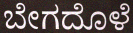
ಬೇಗದೊಳೆ